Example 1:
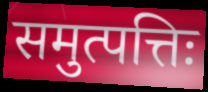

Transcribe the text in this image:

समुत्पत्तिः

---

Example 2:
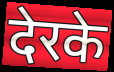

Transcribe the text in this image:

देरके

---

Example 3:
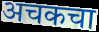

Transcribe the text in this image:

अचकचा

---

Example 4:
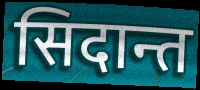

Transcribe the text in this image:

सिदान्त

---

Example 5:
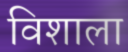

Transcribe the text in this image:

विशाला